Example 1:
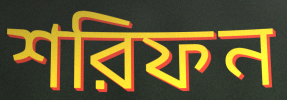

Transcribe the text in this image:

শরিফন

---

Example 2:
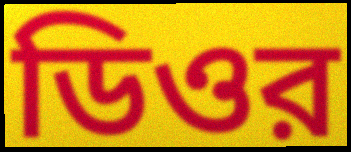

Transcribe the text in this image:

ডিওর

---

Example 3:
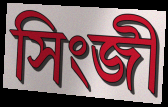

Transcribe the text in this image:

সিংজী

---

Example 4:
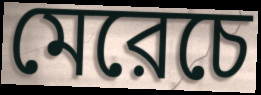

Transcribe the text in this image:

মেরেচে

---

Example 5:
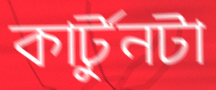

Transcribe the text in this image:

কার্টুনটা